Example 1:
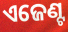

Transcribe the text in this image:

ଏଜେଣ୍ଟ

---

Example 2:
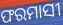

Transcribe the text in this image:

ଫରମାସୀ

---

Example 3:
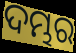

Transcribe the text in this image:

ଦମ୍ଭର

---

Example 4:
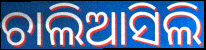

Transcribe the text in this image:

ଚାଲିଆସିଲି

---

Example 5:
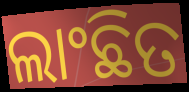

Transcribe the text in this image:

ଲାଂଛିତ